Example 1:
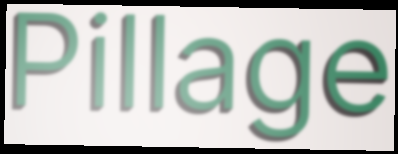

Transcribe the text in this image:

Pillage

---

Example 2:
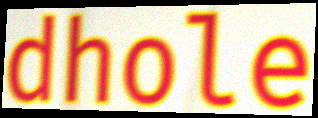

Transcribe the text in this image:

dhole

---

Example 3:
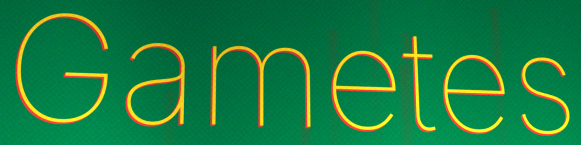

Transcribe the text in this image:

Gametes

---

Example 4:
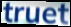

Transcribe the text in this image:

truet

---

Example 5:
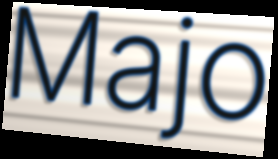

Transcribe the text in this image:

Majo